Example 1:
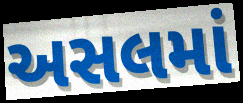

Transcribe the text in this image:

અસલમાં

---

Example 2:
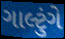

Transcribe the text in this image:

ગાલ્ટુંગે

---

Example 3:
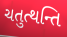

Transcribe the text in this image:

ચતુત્થન્તિ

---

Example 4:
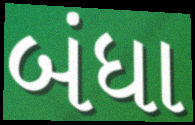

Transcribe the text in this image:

બંધા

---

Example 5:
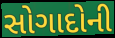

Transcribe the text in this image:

સોગાદોની